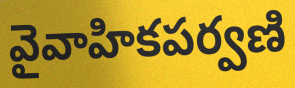
వైవాహికపర్వణి